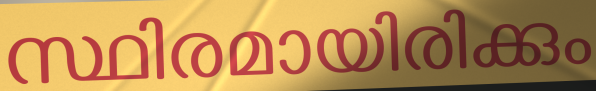
സ്ഥിരമായിരിക്കും